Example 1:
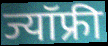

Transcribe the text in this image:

ज्यॉफ्री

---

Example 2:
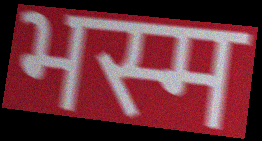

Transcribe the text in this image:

भस्म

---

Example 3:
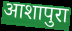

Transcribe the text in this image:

आशापुरा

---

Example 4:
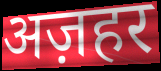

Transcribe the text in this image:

अज़हर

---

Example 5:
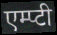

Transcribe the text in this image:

एम्प्टी